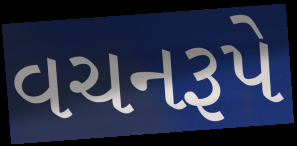
વચનરૂપે